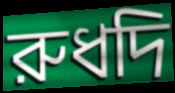
ৰুধদি